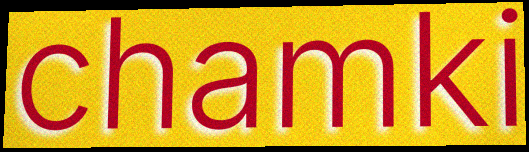
chamki